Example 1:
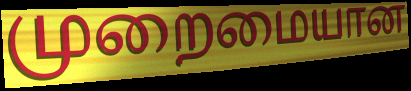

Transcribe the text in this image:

முறைமையான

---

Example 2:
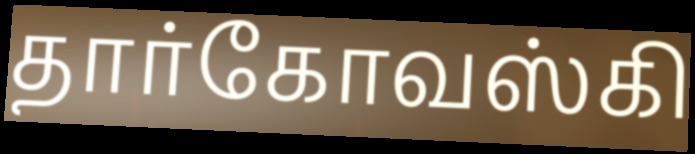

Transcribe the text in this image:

தார்கோவஸ்கி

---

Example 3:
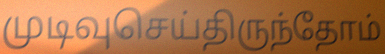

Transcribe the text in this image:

முடிவுசெய்திருந்தோம்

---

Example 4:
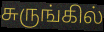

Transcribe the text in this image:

சுருங்கில்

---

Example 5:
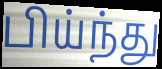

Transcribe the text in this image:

பிய்ந்து